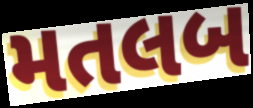
મતલબ